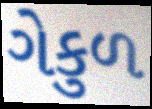
ગેકુળ